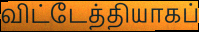
விட்டேத்தியாகப்